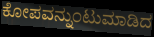
ಕೋಪವನ್ನುಂಟುಮಾಡಿದ